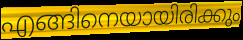
എങ്ങിനെയായിരിക്കും